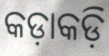
କଡ଼ାକଡ଼ି